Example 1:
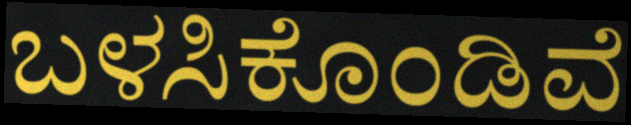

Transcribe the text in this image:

ಬಳಸಿಕೊಂಡಿವೆ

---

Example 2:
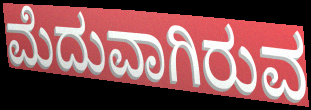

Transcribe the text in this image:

ಮೆದುವಾಗಿರುವ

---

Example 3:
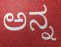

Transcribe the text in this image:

ಅನ್ನ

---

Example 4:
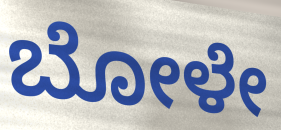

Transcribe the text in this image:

ಬೋಳೇ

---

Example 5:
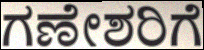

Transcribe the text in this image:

ಗಣೇಶರಿಗೆ